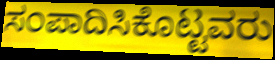
ಸಂಪಾದಿಸಿಕೊಟ್ಟವರು